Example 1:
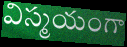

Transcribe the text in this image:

విస్మయంగా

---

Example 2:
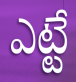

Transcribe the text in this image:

ఎట్టే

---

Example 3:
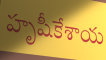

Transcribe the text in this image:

హృషీకేశాయ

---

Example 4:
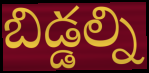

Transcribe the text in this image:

బిడ్డల్ని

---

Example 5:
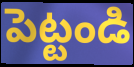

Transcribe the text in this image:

పెట్టండి